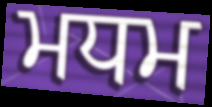
ਮਧਮ